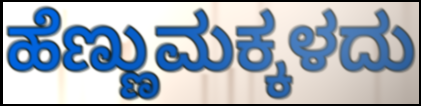
ಹೆಣ್ಣುಮಕ್ಕಳದು